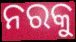
ନରକୁ